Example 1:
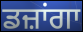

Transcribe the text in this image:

ਡਜ਼ਾਂਗਾ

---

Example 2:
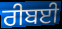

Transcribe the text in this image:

ਰੀਬਈ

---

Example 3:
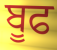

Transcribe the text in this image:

ਬੂਫ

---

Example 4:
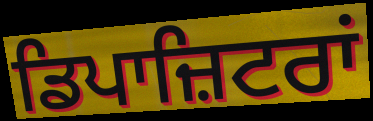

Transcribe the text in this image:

ਡਿਪਾਜ਼ਿਟਰਾਂ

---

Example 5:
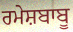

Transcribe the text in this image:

ਰਮੇਸ਼ਬਾਬੂ